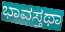
ಭಾವಸ್ತಥಾ